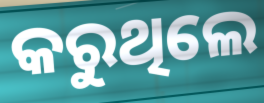
କରୁଥିଲେ